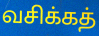
வசிக்கத்